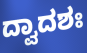
ದ್ವಾದಶಃ